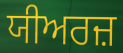
ਯੀਅਰਜ਼